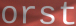
orst